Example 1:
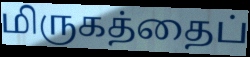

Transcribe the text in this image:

மிருகத்தைப்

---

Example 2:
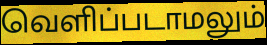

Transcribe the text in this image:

வெளிப்படாமலும்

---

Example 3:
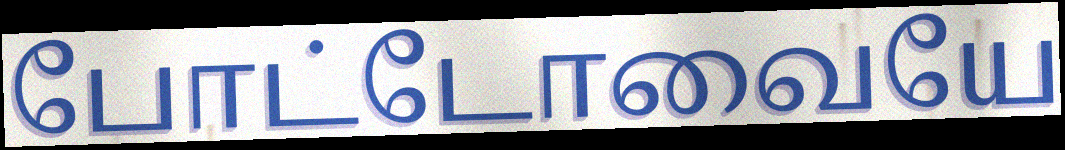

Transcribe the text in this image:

போட்டோவையே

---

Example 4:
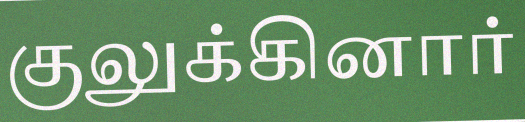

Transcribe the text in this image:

குலுக்கினார்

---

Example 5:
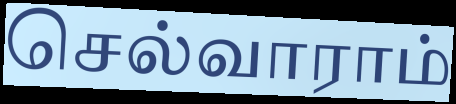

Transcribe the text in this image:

செல்வாராம்